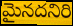
మైనదనిరి